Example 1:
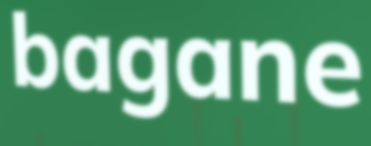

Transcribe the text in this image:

bagane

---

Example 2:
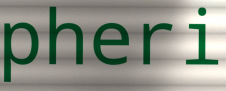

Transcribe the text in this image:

pheri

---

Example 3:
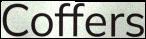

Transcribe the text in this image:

Coffers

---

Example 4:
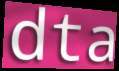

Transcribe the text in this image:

dta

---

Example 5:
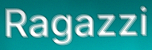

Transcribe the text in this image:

Ragazzi